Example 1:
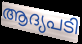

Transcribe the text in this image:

ആദ്യപടി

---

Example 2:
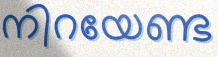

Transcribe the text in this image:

നിറയേണ്ട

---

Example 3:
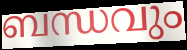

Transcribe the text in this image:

ബന്ധവും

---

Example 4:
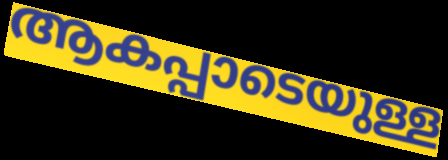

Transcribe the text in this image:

ആകപ്പാടെയുള്ള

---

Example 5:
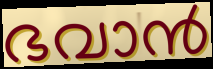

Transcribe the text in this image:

ഭവാൻ